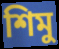
শিমু